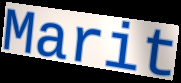
Marit